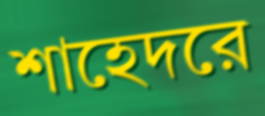
শাহেদরে